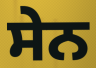
ਸੇਨ